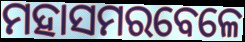
ମହାସମରବେଳେ